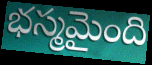
భస్మమైంది